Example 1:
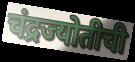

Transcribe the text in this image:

चंद्रज्योतीची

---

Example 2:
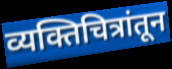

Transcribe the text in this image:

व्यक्तिचित्रांतून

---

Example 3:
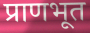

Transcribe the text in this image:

प्राणभूत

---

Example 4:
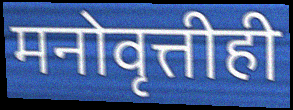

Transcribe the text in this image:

मनोवृत्तीही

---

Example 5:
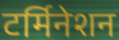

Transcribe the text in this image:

टर्मिनेशन